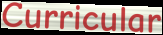
Curricular